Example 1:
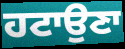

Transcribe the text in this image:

ਹਟਾਉਣਾ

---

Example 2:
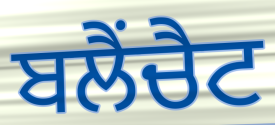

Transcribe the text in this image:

ਬਲੈਂਚੈਟ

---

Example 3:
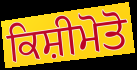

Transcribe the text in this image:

ਕਿਸ਼ੀਮੋਤੋ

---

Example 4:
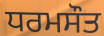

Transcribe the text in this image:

ਧਰਮਸੌਤ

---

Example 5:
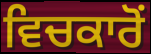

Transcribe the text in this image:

ਵਿਚਕਾਰੋਂ